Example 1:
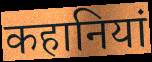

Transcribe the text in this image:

कहानियां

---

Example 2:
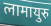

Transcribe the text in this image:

लामायुरु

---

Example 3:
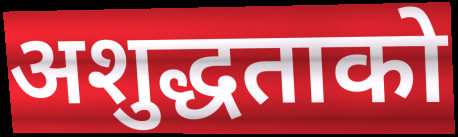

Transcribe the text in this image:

अशुद्धताको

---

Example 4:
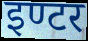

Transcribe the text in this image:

इण्टर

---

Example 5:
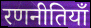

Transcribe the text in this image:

रणनीतियाँ